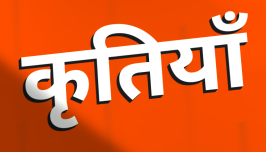
कृतियाँ